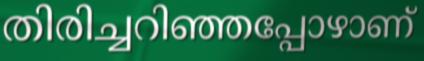
തിരിച്ചറിഞ്ഞപ്പോഴാണ്